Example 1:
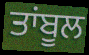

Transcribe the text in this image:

ਤਾਂਬੂਲ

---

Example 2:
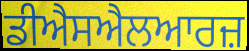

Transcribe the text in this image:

ਡੀਐਸਐਲਆਰਜ਼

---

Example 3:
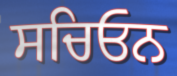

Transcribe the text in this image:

ਸਚਿਓਨ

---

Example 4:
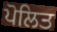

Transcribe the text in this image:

ਪੋਲਿਤ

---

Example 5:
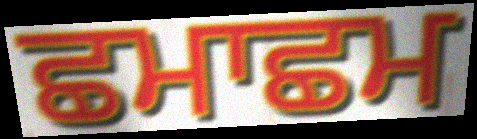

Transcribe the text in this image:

ਛਮਾਛਮ